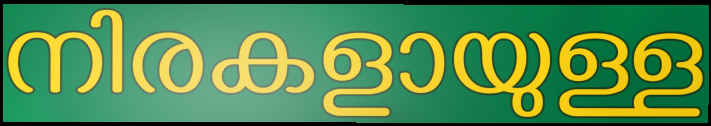
നിരകളായുള്ള